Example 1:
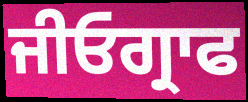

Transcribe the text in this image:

ਜੀਓਗ੍ਰਾਫ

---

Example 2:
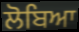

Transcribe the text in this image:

ਲੋਬਿਆ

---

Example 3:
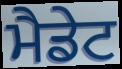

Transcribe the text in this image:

ਮੈਡੇਟ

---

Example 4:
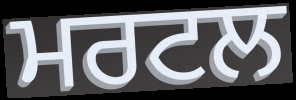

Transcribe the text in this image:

ਮਰਟਲ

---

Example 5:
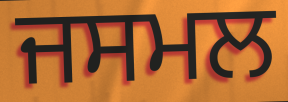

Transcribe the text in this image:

ਜਸਮਲ